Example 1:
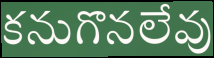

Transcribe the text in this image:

కనుగొనలేవు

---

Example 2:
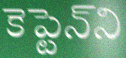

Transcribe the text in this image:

కెప్టెన్‌ని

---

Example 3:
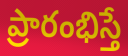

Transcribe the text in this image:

ప్రారంభిస్తే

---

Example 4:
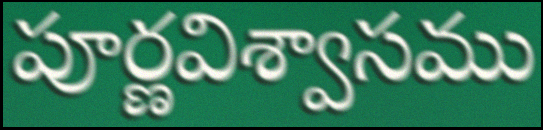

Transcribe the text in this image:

పూర్ణవిశ్వాసము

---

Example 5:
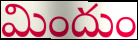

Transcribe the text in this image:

మిందుం